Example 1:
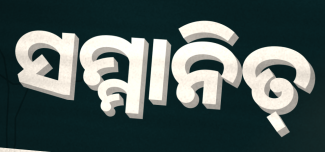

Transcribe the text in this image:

ସମ୍ମାନିତ୍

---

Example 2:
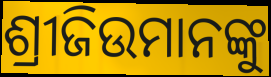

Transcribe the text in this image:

ଶ୍ରୀଜିଉମାନଙ୍କୁ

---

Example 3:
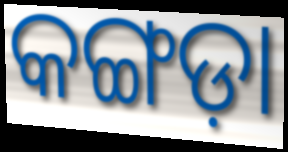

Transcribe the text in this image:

କଙ୍ଗଡ଼ା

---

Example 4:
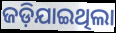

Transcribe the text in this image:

ଜଡ଼ିଯାଇଥିଲା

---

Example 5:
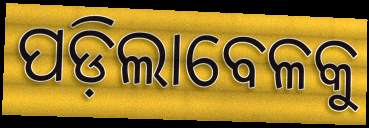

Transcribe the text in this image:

ପଡ଼ିଲାବେଳକୁ